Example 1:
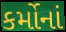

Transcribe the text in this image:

કર્મોનાં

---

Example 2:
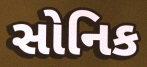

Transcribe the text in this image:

સોનિક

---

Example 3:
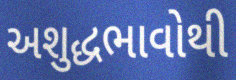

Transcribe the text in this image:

અશુદ્ધભાવોથી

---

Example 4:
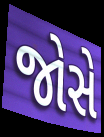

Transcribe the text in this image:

જોસે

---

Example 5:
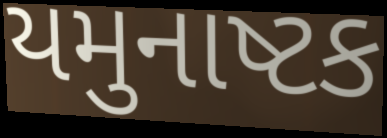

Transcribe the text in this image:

યમુનાષ્ટક